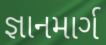
જ્ઞાનમાર્ગ